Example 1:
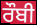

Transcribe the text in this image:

ਰੌਬੀ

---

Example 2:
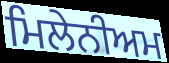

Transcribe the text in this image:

ਮਿਲੇਨੀਅਮ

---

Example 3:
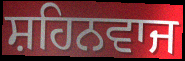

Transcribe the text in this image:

ਸ਼ਹਿਨਵਾਜ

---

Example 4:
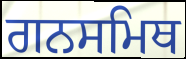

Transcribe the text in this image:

ਗਨਸਮਿਥ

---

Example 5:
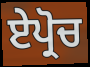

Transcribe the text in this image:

ਏਪ੍ਰੋਚ